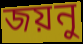
জয়নু